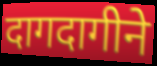
दागदागीने